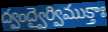
ద్వంద్వైర్విముక్తాః